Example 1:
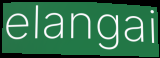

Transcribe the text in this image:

elangai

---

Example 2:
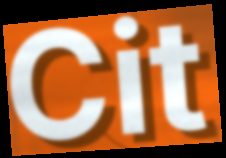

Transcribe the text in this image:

Cit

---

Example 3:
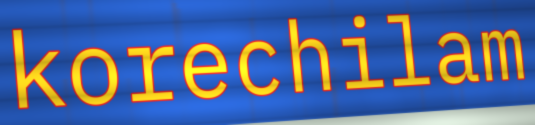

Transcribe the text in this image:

korechilam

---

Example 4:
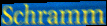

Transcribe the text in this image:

Schramm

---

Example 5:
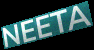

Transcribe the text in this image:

NEETA